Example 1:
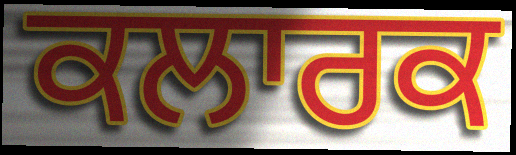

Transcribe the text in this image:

ਕਲਾਰਕ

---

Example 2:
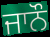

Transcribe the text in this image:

ਜਾਨੌ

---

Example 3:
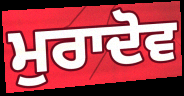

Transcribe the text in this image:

ਮੁਰਾਦੋਵ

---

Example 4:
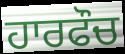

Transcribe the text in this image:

ਹਾਰਫੌਚ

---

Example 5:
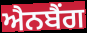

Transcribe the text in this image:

ਐਨਬੈਂਗ